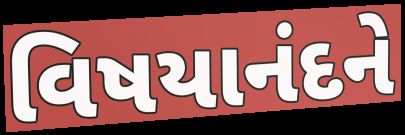
વિષયાનંદને